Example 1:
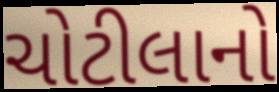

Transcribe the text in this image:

ચોટીલાનો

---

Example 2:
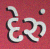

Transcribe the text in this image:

દેરું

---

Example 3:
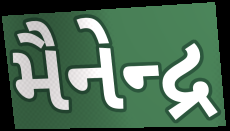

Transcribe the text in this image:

મૈનેન્દ્ર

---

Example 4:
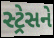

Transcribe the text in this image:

સ્ટ્રેસને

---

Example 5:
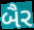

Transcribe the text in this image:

બૈર